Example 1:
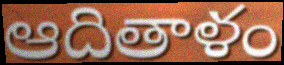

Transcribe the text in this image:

ఆదితాళం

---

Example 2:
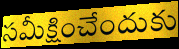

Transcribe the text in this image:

సమీక్షించేందుకు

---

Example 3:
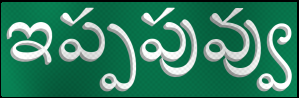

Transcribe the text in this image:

ఇప్పపువ్వు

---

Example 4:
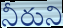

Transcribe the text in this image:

నీరుని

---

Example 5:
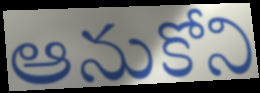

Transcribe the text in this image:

ఆనుకోని